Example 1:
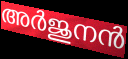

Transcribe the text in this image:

അർജുനൻ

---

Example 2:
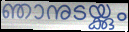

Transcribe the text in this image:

ഞാനുടയ്ക്കും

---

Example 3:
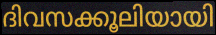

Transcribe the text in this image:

ദിവസക്കൂലിയായി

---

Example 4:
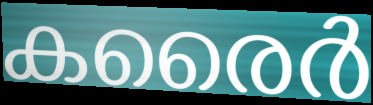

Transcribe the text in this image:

കരൈർ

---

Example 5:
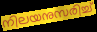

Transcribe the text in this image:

നിലയനുസരിച്ച്